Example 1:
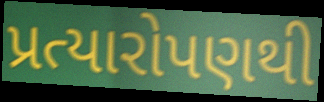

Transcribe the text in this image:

પ્રત્યારોપણથી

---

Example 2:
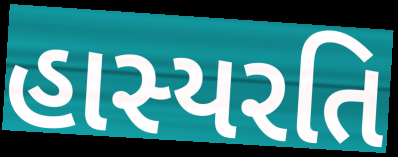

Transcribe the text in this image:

હાસ્યરતિ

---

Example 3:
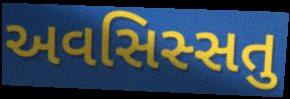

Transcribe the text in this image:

અવસિસ્સતુ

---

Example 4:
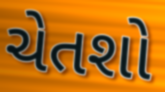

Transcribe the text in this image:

ચેતશો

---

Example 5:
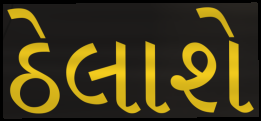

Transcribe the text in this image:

ઠેલાશે